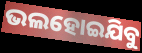
ଭଲହୋଇଯିବୁ